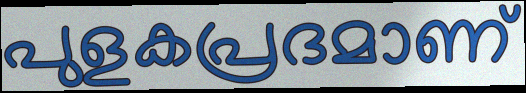
പുളകപ്രദമാണ്